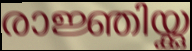
രാജ്ഞിയ്ക്കു